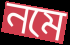
নমে